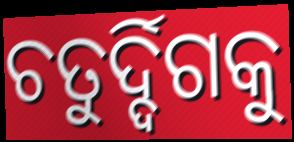
ଚତୁର୍ଦ୍ଦିଗକୁ